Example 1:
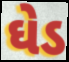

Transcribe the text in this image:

ઘેડ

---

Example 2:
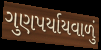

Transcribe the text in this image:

ગુણપર્યાયવાળું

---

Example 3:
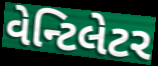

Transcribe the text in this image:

વેન્ટિલેટર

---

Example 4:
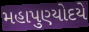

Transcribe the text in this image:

મહાપુણ્યોદયે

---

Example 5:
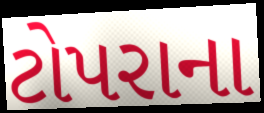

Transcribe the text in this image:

ટોપરાના